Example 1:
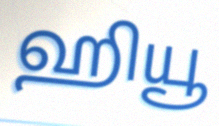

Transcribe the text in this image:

ஹியூ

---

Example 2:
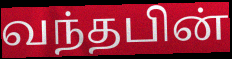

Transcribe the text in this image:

வந்தபின்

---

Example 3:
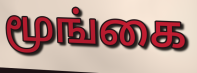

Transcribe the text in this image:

மூங்கை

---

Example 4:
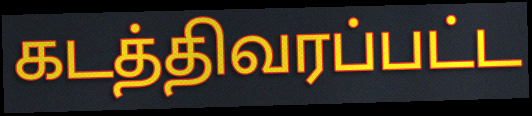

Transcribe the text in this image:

கடத்திவரப்பட்ட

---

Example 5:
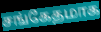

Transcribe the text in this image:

சங்கேதமாக